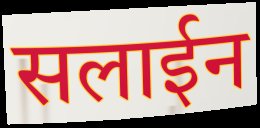
सलाईन